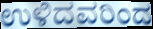
ಉಳಿದವರಿಂದ